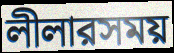
লীলারসময়